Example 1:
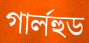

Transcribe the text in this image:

গার্লহুড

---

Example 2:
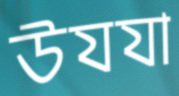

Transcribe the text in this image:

উযযা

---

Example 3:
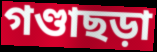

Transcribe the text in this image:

গণ্ডাছড়া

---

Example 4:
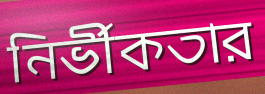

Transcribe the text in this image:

নির্ভীকতার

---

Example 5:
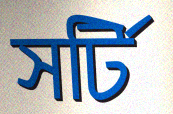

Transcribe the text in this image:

সর্টি